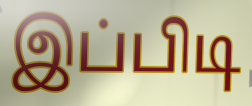
இப்பிடி